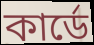
কার্ডে